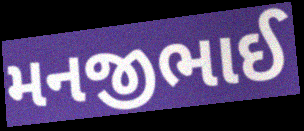
મનજીભાઈ